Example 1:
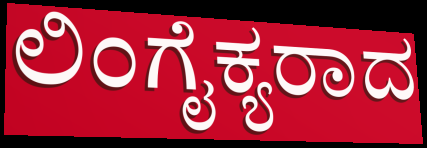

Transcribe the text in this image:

ಲಿಂಗೈಕ್ಯರಾದ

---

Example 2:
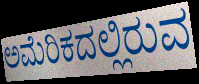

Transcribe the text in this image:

ಅಮೆರಿಕದಲ್ಲಿರುವ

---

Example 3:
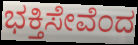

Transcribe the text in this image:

ಭಕ್ತಿಸೇವೆಂದ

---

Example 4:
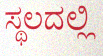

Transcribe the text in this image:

ಸ್ಥಲದಲ್ಲಿ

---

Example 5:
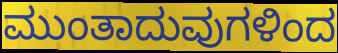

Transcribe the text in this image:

ಮುಂತಾದುವುಗಳಿಂದ